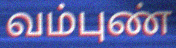
வம்புண்